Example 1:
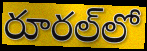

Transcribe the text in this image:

రూరల్‌లో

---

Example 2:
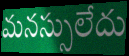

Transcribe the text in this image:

మనస్సులేదు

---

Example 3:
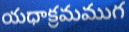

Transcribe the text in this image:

యధాక్రమముగ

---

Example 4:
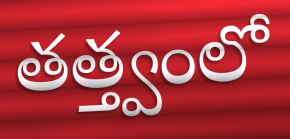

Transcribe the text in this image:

తత్త్వంలో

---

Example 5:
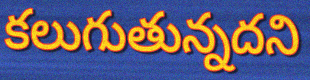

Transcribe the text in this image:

కలుగుతున్నదని